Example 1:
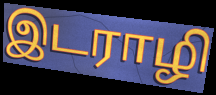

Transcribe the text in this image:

இடராழி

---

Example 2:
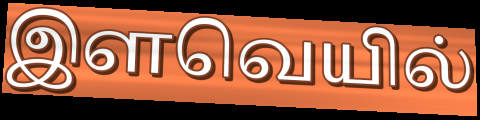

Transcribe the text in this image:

இளவெயில்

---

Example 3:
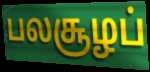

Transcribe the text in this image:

பலசூழப்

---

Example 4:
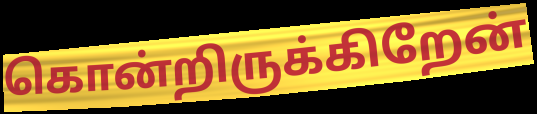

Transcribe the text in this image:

கொன்றிருக்கிறேன்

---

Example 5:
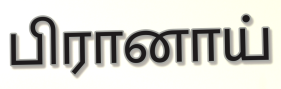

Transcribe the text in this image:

பிரானாய்